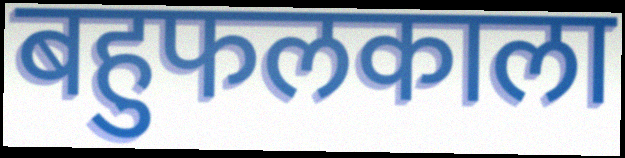
बहुफलकाला